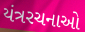
યંત્રરચનાઓ